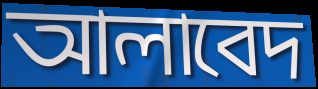
আলাবেদ